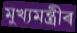
মুখ্যমন্ত্ৰীৰ